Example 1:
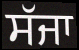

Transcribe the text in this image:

ਸੱਜਾ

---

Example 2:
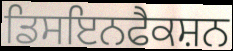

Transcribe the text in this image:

ਡਿਸਇਨਫੈਕਸ਼ਨ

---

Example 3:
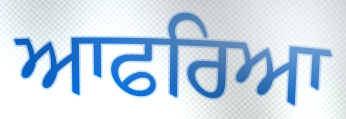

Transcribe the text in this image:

ਆਫਰਿਆ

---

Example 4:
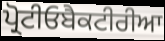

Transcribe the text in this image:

ਪ੍ਰੋਟੀਓਬੈਕਟੀਰੀਆ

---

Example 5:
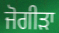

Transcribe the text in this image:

ਜੋਗੀੜਾ